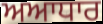
ਅਆਧਾਰ